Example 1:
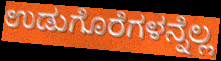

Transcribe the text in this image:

ಉಡುಗೊರೆಗಳನ್ನೆಲ್ಲ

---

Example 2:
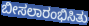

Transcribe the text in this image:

ಬೀಸಲಾರಂಭಿಸಿತು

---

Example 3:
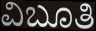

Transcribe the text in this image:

ವಿಬೂತಿ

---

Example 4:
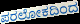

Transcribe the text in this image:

ಪರಲೋಕದಿಂದ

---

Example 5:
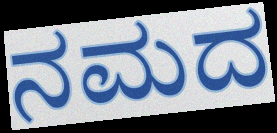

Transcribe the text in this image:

ನಮದ